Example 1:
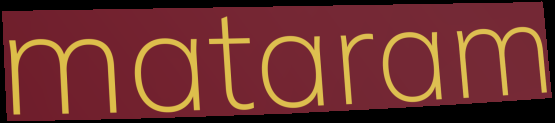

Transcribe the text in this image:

mataram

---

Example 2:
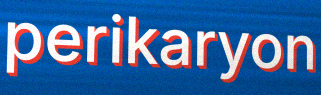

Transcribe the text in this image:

perikaryon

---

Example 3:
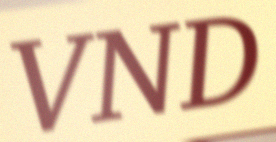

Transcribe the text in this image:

VND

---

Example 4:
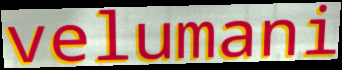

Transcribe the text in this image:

velumani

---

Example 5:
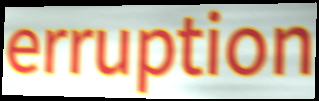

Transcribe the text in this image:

erruption